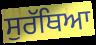
ਸੁਰੱਥਿਆ